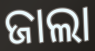
ଜାଲା